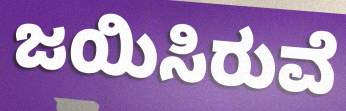
ಜಯಿಸಿರುವೆ